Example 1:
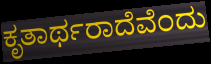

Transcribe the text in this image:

ಕೃತಾರ್ಥರಾದೆವೆಂದು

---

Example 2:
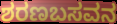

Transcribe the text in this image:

ಶರಣಬಸವನ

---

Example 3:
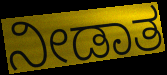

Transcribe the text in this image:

ನೀಡಾತ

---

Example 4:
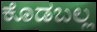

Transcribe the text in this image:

ಕೊಡಬಲ್ಲ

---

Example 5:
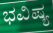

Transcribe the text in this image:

ಭವಿಷ್ಯ